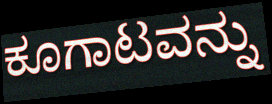
ಕೂಗಾಟವನ್ನು